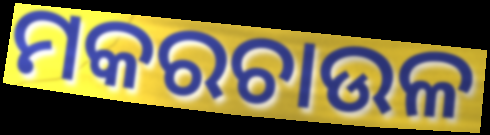
ମକରଚାଉଳ